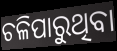
ଚଳିପାରୁଥିବା